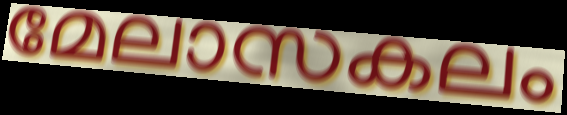
മേലാസകലം